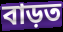
বাড়ত